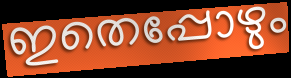
ഇതെപ്പോഴും